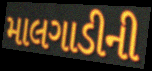
માલગાડીની